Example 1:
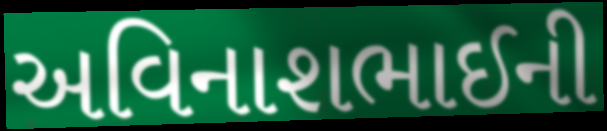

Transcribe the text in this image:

અવિનાશભાઈની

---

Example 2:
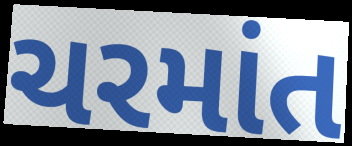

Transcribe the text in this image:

ચરમાંત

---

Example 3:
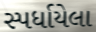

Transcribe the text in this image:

સ્પર્ધાયેલા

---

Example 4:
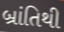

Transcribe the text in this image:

બ્રાંતિથી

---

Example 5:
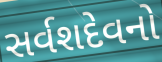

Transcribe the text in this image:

સર્વશદેવનો